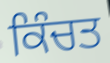
ਕਿੰਚਤ